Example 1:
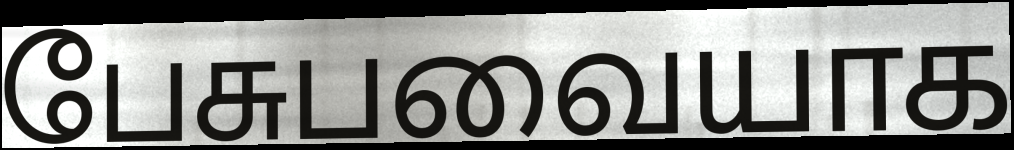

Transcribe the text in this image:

பேசுபவையாக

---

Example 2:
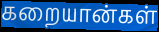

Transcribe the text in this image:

கறையான்கள்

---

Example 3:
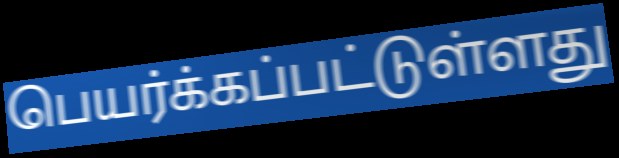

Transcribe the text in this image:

பெயர்க்கப்பட்டுள்ளது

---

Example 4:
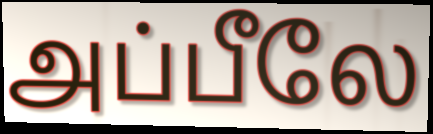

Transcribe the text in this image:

அப்பீலே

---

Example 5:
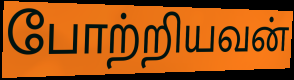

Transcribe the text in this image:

போற்றியவன்